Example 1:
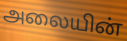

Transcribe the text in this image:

அலையின்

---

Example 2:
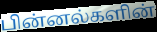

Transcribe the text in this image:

பின்னல்களின்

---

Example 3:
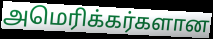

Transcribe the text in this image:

அமெரிக்கர்களான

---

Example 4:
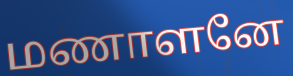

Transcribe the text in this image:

மணாளனே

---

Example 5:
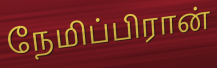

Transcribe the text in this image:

நேமிப்பிரான்